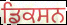
ਡਿਕਸਨ